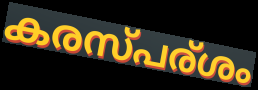
കരസ്പര്ശം